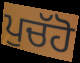
ਪੁਚੱਹੋ